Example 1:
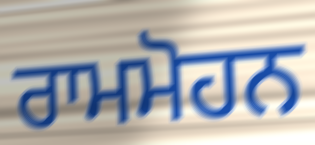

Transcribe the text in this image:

ਰਾਮਮੋਹਨ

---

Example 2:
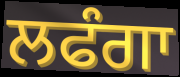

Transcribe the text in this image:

ਲਫੰਗਾ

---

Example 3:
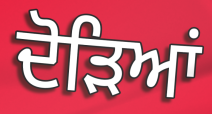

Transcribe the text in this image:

ਦੋੜਿਆਂ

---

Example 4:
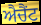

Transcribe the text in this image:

ਐਚੈਂਟ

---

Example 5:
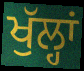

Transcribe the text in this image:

ਖੁੱਲ੍ਹਾਂ